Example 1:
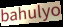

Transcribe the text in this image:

bahulyo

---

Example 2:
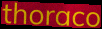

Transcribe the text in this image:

thoraco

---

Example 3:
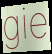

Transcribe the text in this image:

gie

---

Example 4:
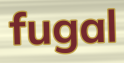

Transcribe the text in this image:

fugal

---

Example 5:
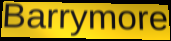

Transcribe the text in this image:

Barrymore